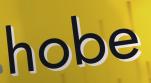
hobe